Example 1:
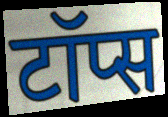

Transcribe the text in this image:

टॉप्स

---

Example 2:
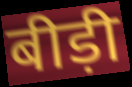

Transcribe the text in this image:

बीड़ी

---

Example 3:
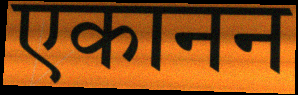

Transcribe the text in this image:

एकानन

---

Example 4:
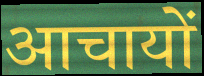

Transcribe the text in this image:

आचायों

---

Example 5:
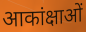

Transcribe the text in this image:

आकांक्षाओं